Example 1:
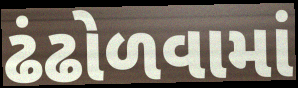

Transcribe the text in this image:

ઢંઢોળવામાં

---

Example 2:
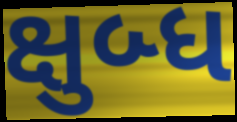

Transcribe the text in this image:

ક્ષુબ્ધ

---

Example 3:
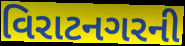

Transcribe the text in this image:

વિરાટનગરની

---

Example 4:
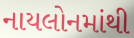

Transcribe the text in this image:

નાયલોનમાંથી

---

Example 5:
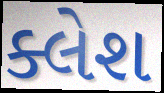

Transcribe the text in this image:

ક્લેશ